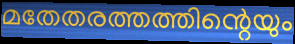
മതേതരത്തത്തിന്റെയും